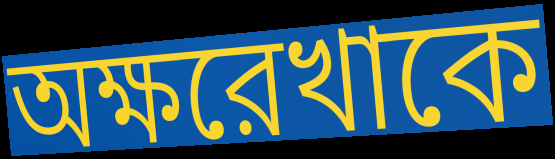
অক্ষরেখাকে